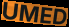
UMED